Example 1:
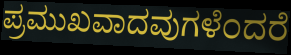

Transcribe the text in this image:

ಪ್ರಮುಖವಾದವುಗಳೆಂದರೆ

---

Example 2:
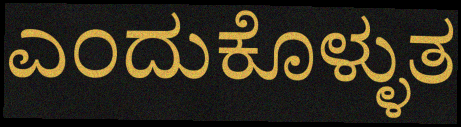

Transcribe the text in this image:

ಎಂದುಕೊಳ್ಳುತ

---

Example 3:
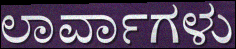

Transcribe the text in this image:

ಲಾರ್ವಾಗಳು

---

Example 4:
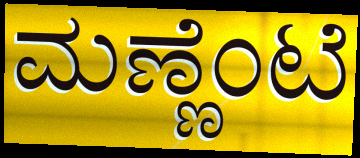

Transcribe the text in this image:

ಮಣ್ಣೆಂಟೆ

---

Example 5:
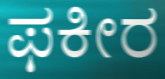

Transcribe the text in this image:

ಫಕೀರ